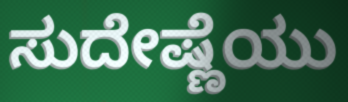
ಸುದೇಷ್ಣೆಯು